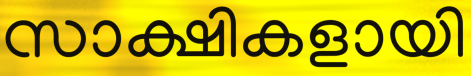
സാക്ഷികളായി